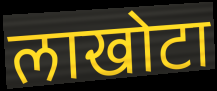
लाखोटा